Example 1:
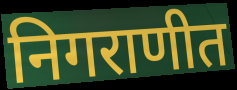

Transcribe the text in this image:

निगराणीत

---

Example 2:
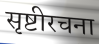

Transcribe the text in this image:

सृष्टीरचना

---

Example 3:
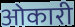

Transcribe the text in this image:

ओकारी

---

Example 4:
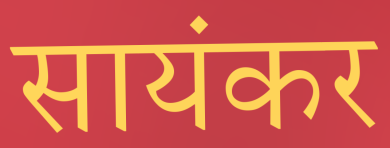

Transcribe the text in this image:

सायंकर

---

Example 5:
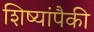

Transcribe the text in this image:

शिष्यांपैकी